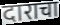
दाराचा